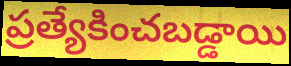
ప్రత్యేకించబడ్డాయి